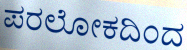
ಪರಲೋಕದಿಂದ